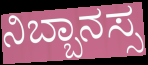
ನಿಬ್ಬಾನಸ್ಸ